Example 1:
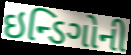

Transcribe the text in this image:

ઇન્ડિગોની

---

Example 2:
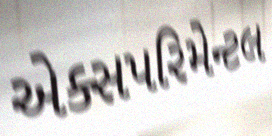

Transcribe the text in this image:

એક્સપરિમેન્ટલ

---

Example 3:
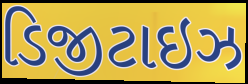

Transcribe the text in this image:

ડિજીટાઇઝ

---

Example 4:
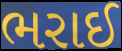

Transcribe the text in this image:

ભરાઈ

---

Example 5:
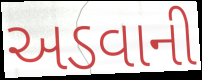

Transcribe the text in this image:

અડવાની